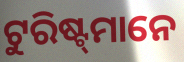
ଟୁରିଷ୍ଟ୍‍ମାନେ